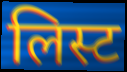
लिस्ट